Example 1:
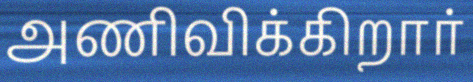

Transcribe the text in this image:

அணிவிக்கிறார்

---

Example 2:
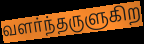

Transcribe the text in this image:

வளர்ந்தருளுகிற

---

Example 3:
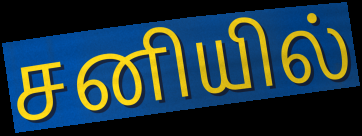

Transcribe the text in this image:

சனியில்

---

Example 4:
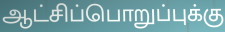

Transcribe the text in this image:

ஆட்சிப்பொறுப்புக்கு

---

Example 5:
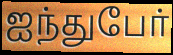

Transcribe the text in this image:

ஐந்துபேர்